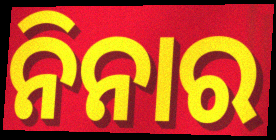
ନିନାର